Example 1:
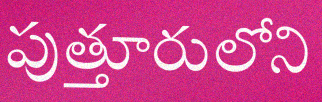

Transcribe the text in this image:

పుత్తూరులోని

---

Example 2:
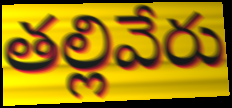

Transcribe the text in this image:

తల్లివేరు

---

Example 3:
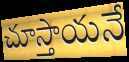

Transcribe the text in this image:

చూస్తాయనే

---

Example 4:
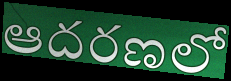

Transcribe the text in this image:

ఆదరణలో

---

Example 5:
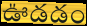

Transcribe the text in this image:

ఊడడం